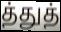
த்துத்